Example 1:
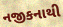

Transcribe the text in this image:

નજીકનાથી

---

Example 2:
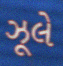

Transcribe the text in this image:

ઝૂલે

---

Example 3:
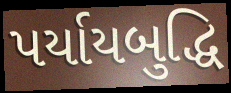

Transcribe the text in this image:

પર્યાયબુદ્ધિ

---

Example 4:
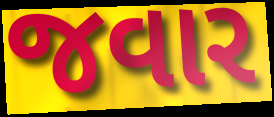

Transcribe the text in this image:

જવાર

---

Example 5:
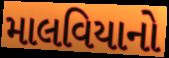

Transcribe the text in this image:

માલવિયાનો